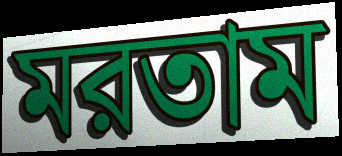
মরতাম